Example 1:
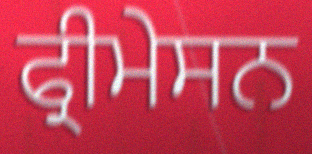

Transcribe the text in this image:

ਫ੍ਰੀਮੇਸਨ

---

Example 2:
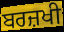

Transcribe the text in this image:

ਬਰਜ਼ਖੀ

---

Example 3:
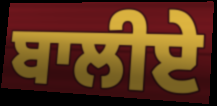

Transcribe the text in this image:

ਬਾਲੀਏ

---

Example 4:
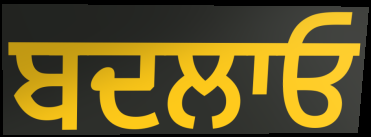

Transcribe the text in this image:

ਬਦਲਾਓ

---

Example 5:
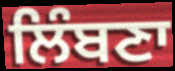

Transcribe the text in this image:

ਲਿੰਬਣਾ